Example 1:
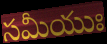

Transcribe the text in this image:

సమీయుః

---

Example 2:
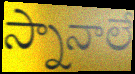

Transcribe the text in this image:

స్నానాలే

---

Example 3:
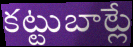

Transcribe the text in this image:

కట్టుబాట్లే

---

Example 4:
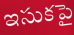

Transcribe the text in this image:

ఇసుకపై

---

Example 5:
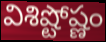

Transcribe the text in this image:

విశిష్టోష్ణం